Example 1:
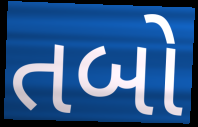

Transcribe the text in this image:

તબો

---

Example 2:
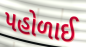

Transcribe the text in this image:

પહોળાઈ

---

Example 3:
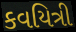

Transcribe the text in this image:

કવયિત્રી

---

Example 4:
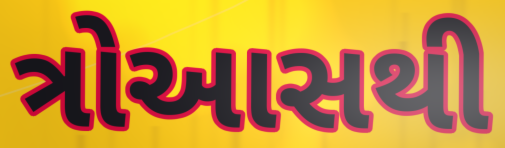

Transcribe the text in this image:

ત્રોઆસથી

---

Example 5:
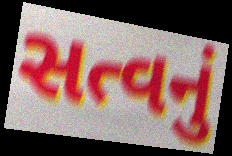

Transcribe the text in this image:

સત્વનું